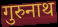
गुरुनाथ